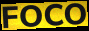
FOCO